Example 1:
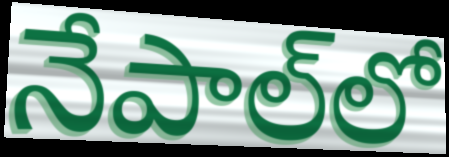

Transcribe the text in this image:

నేపాల్‌లో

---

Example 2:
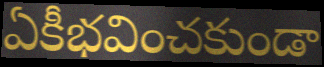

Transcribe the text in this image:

ఏకీభవించకుండా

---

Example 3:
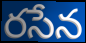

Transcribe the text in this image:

రసేన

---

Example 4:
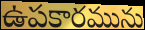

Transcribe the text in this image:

ఉపకారమును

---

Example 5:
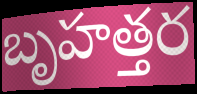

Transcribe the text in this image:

బృహత్తర